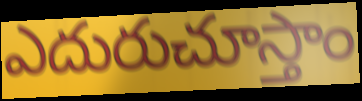
ఎదురుచూస్తాం